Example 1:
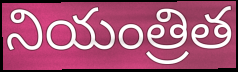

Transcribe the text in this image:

నియంత్రిత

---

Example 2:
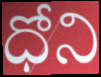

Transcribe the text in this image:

ధోని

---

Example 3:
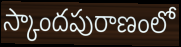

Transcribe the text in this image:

స్కాందపురాణంలో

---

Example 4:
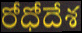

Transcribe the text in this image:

రోధోదేశ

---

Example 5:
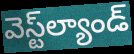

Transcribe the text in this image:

వెస్ట్‌ల్యాండ్